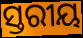
ସ୍ତରୀୟ